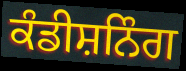
ਕੰਡੀਸ਼ਨਿੰਗ